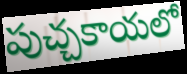
పుచ్చకాయలో